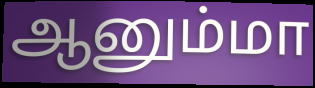
ஆனும்மா